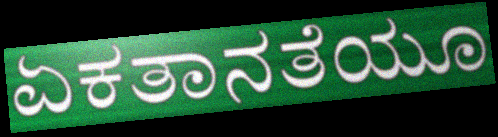
ಏಕತಾನತೆಯೂ